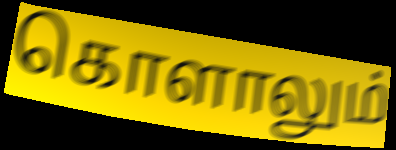
கொளாலும்